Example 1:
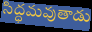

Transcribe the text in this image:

సిద్ధమవుతాడు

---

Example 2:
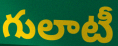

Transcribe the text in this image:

గులాటీ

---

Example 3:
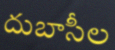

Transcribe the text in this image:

దుబాసీల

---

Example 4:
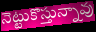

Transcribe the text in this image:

నెట్టుకొస్తున్నావు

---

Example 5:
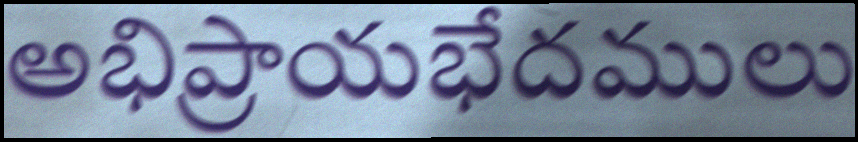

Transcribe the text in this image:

అభిప్రాయభేదములు